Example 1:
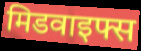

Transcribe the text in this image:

मिडवाइफ्स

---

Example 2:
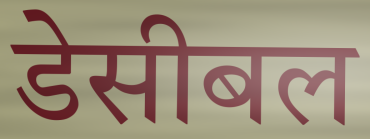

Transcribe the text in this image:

डेसीबल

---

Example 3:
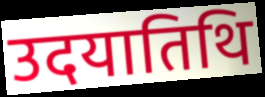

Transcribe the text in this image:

उदयातिथि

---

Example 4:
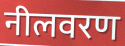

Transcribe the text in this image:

नीलवरण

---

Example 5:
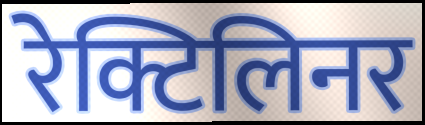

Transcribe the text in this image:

रेक्टिलिनर